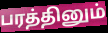
பரத்தினும்